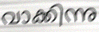
വാക്കിന്നു